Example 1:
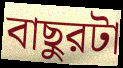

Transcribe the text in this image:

বাছুরটা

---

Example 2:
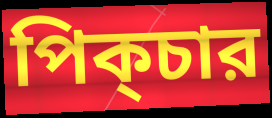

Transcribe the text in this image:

পিক্চার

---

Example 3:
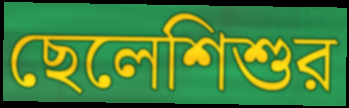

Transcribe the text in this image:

ছেলেশিশুর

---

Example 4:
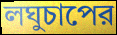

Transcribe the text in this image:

লঘুচাপের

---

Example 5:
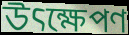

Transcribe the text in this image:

উৎক্ষেপণ